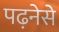
पढ़नेसे